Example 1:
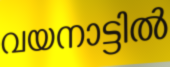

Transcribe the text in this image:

വയനാട്ടിൽ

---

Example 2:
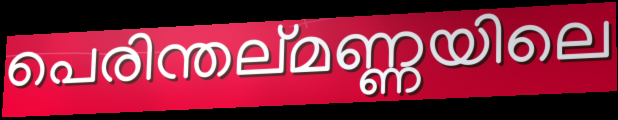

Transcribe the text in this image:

പെരിന്തല്മണ്ണയിലെ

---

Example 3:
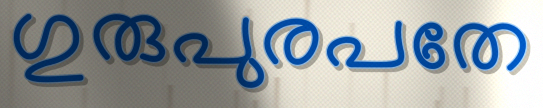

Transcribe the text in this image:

ഗുരുപുരപതേ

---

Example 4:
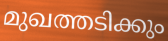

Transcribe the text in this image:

മുഖത്തടിക്കും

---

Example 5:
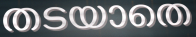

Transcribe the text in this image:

തടയാതെ